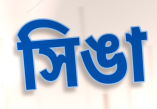
সিঙা